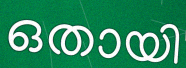
ഒതായി